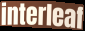
interleaf